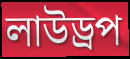
লাউড্রপ